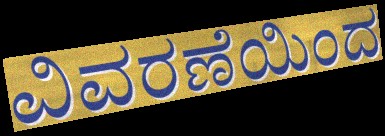
ವಿವರಣೆಯಿಂದ